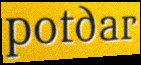
potdar